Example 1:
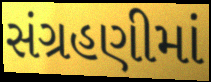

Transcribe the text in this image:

સંગ્રહણીમાં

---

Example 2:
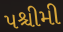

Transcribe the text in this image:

પશ્ચીમી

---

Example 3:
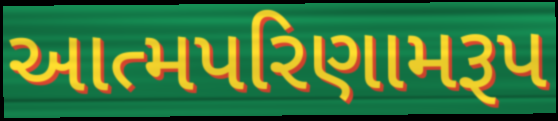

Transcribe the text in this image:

આત્મપરિણામરૂપ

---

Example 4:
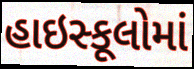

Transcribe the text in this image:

હાઇસ્કૂલોમાં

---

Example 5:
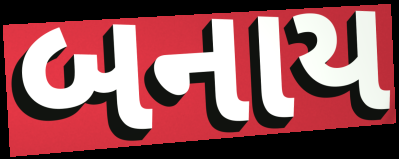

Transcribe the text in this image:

બનાય